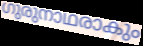
ഗുരുനാഥരാകും